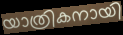
യാത്രികനായി